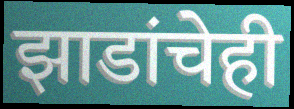
झाडांचेही